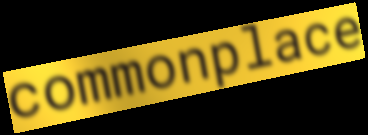
commonplace